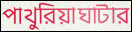
পাথুরিয়াঘাটার